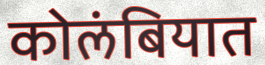
कोलंबियात